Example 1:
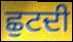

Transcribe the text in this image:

ਛੁਟਦੀ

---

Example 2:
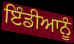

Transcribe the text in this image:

ਇੰਡੀਆਨੂੰ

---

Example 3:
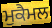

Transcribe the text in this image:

ਮੁਕੈਮਲ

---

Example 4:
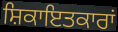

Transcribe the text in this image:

ਸ਼ਿਕਾਇਤਕਾਰਾਂ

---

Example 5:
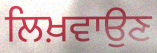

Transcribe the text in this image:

ਲਿਖ਼ਵਾਉਣ